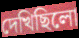
দেখিছিলো